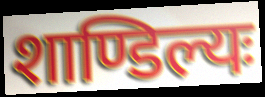
शाण्डिल्यः